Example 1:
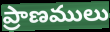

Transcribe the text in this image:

ప్రాణములు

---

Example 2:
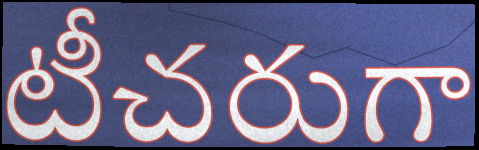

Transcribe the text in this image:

టీచరుగా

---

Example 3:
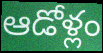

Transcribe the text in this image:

ఆడోళ్లం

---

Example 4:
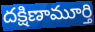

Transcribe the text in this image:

దక్షిణామూర్తి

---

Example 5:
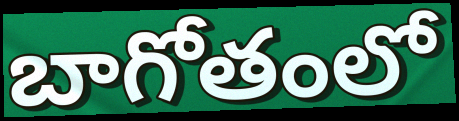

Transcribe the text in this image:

బాగోతంలో